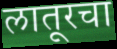
लातूरचा